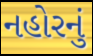
નહોરનું